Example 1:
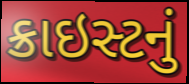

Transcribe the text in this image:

ક્રાઇસ્ટનું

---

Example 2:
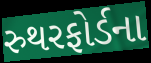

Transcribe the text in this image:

રુથરફોર્ડના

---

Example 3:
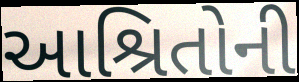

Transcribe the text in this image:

આશ્રિતોની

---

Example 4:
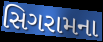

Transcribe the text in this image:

સિગરામના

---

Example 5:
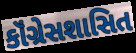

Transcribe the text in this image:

કૉંગ્રેસશાસિત